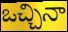
ఒచ్చినా